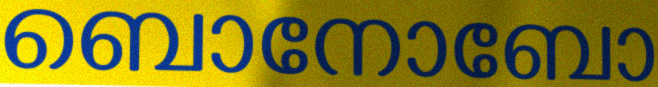
ബൊനോബോ